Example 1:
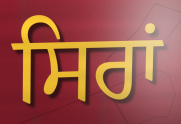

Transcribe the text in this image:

ਸਿਰਾਂ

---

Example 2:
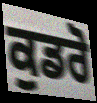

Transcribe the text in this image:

ਕੁਡਰੋ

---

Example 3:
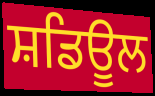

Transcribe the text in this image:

ਸ਼ਡਿਊਲ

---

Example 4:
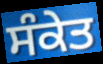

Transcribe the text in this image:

ਸੰਕੇਤ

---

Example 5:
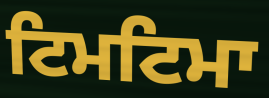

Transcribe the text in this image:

ਟਿਮਟਿਮਾ